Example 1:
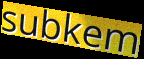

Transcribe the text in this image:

subkem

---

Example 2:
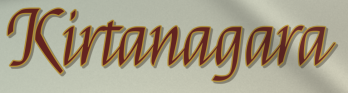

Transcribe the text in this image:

Kirtanagara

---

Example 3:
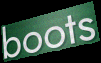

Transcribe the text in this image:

boots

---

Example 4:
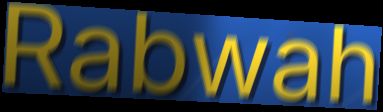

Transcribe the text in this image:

Rabwah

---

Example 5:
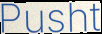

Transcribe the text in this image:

Pusht